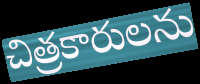
చిత్రకారులను